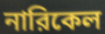
নারিকেল